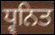
ਧ੍ਵਨਿਤ